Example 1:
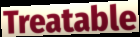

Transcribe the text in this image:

Treatable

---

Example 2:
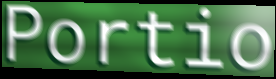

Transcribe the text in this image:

Portio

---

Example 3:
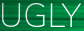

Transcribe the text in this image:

UGLY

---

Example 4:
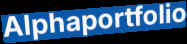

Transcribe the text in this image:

Alphaportfolio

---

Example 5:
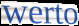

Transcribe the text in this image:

werto